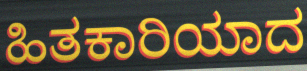
ಹಿತಕಾರಿಯಾದ